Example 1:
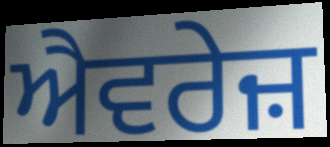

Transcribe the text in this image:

ਐਵਰੇਜ਼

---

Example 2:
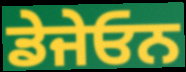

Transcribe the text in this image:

ਡੇਜੇਓਨ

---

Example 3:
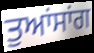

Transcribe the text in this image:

ਤੁਆਂਸਾਂਗ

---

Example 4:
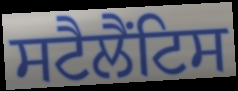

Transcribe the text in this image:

ਸਟੈਲੈਂਟਿਸ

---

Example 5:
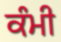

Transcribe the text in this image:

ਕੰਮੀ